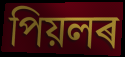
পিয়লৰ